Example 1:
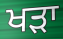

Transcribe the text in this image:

ਖੜਾ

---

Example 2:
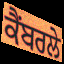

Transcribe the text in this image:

ਕੈਂਬਰਲੇ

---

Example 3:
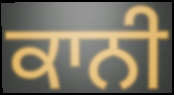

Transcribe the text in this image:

ਕਾਨੀ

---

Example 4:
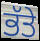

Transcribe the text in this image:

ਭੱਤੇ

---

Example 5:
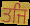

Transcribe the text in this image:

ਤਜਿ